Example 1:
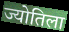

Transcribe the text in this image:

ज्योतिला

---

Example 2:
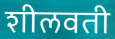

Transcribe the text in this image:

शीलवती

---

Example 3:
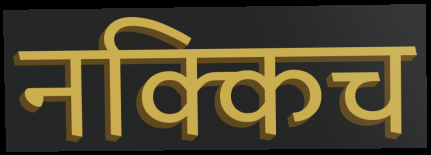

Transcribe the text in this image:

नक्किच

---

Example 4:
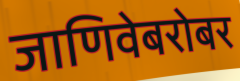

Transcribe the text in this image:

जाणिवेबरोबर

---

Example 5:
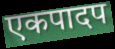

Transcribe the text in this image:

एकपादप